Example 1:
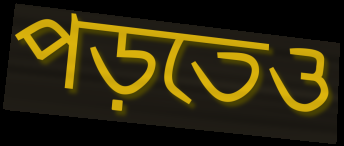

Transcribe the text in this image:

পড়তেও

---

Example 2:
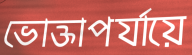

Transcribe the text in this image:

ভোক্তাপর্যায়ে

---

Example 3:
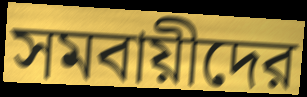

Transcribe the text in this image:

সমবায়ীদের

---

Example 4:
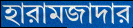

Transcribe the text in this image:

হারামজাদার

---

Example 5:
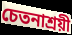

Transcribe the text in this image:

চেতনাশ্রয়ী